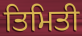
ਤਿਮਿਤੀ